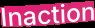
Inaction